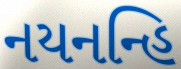
નયનન્હિ